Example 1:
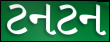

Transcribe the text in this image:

ટનટન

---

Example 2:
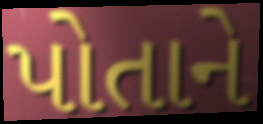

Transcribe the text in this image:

પોતાને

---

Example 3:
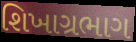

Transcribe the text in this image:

શિખાગ્રભાગ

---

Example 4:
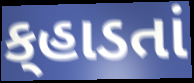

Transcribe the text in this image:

ક્‌હાડતાં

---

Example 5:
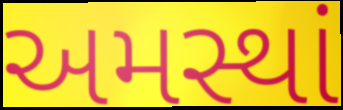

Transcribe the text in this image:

અમસ્થાં